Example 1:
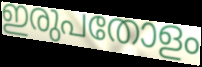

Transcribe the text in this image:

ഇരുപതോളം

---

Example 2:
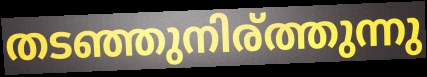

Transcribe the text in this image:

തടഞ്ഞുനിര്ത്തുന്നു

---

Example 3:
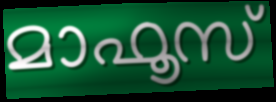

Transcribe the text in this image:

മാഫൂസ്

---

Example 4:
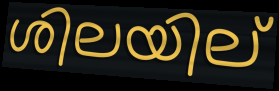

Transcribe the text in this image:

ശിലയില്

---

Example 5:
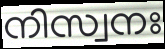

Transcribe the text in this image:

നിസ്വനഃ